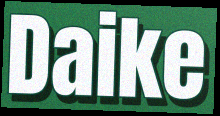
Daike